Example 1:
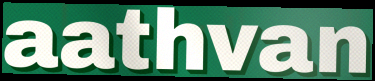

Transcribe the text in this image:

aathvan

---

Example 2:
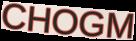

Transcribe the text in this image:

CHOGM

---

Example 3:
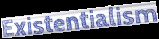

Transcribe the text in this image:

Existentialism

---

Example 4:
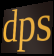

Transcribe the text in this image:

dps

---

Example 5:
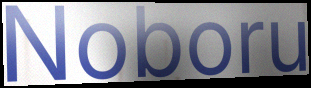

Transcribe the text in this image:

Noboru